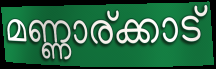
മണ്ണാര്ക്കാട്